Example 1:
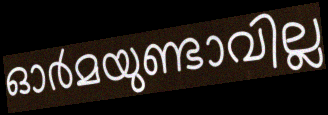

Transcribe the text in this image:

ഓർമയുണ്ടാവില്ല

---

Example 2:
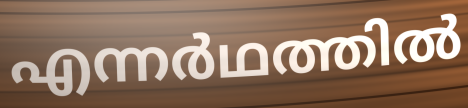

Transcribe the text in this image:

എന്നർഥത്തിൽ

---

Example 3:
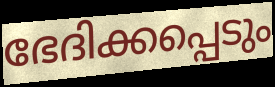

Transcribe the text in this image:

ഭേദിക്കപ്പെടും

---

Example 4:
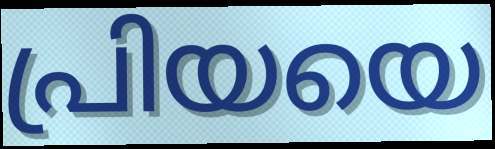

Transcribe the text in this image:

പ്രിയയെ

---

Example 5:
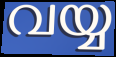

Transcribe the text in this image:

വയ്യ